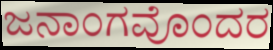
ಜನಾಂಗವೊಂದರ